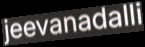
jeevanadalli